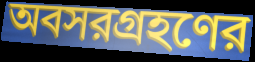
অবসরগ্রহণের